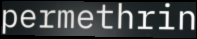
permethrin